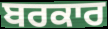
ਬਰਕਾਰ